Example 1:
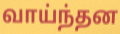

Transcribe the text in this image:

வாய்ந்தன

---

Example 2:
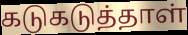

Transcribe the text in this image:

கடுகடுத்தாள்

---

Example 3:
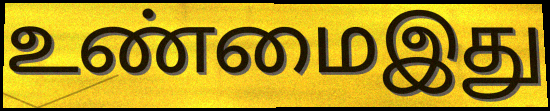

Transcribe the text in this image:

உண்மைஇது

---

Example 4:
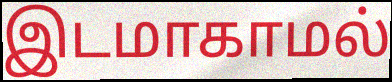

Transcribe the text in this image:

இடமாகாமல்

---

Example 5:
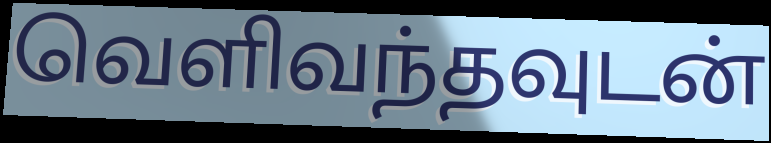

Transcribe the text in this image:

வெளிவந்தவுடன்